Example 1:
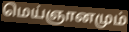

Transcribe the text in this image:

மெய்ஞானமும்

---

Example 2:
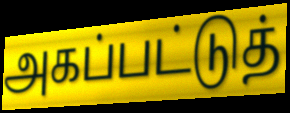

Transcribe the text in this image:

அகப்பட்டுத்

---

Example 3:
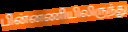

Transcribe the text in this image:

பின்னணியிலிருந்து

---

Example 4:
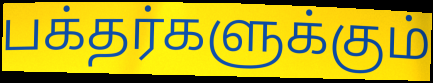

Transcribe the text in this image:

பக்தர்களுக்கும்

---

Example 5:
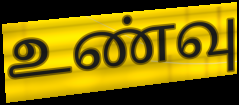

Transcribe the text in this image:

உண்வு